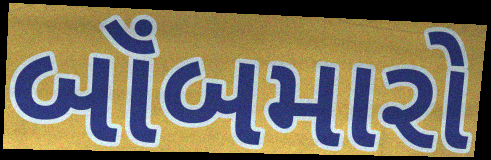
બૉંબમારો